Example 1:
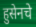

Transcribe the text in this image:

हुसेनचे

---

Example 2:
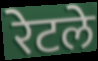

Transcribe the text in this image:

रेटले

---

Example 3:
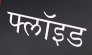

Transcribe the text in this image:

फ्लॉइड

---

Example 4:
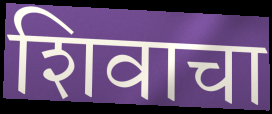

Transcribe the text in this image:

शिवाचा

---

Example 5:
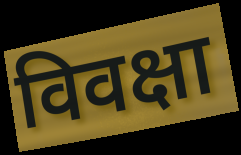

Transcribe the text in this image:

विवक्षा